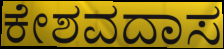
ಕೇಶವದಾಸ